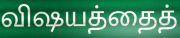
விஷயத்தைத்